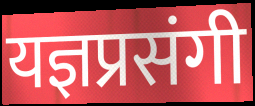
यज्ञप्रसंगी